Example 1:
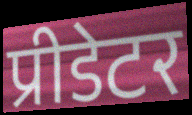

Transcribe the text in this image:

प्रीडेटर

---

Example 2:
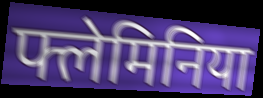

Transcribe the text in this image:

फ्लेमिनिया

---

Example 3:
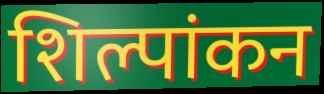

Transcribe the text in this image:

शिल्पांकन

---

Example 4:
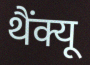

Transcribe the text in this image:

थैंक्यू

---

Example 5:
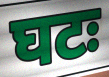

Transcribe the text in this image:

घटः